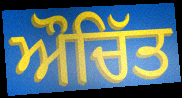
ਔਚਿੱਤ